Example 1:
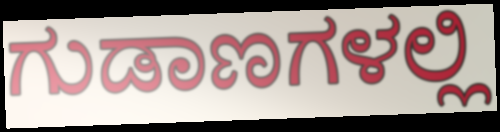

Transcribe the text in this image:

ಗುಡಾಣಗಳಲ್ಲಿ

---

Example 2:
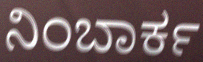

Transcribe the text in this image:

ನಿಂಬಾರ್ಕ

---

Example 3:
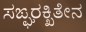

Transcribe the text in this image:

ಸಙ್ಘರಕ್ಖಿತೇನ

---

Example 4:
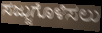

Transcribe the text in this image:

ಸಜ್ಜುಗೊಳಿಸಲು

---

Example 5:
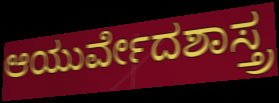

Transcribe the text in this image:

ಆಯುರ್ವೇದಶಾಸ್ತ್ರ